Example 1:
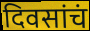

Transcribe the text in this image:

दिवसांचं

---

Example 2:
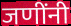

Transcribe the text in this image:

जणींनी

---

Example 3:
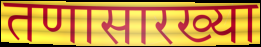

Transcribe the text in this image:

तणासारख्या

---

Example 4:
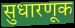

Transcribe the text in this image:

सुधारणूक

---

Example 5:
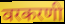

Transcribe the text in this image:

वरकरणी